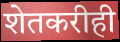
शेतकरीही